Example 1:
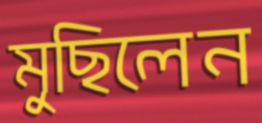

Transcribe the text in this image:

মুছিলেন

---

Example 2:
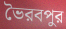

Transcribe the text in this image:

ভৈরবপুর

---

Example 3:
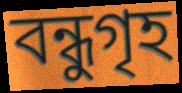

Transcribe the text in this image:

বন্ধুগৃহ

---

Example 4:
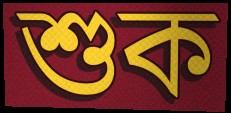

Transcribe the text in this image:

শুক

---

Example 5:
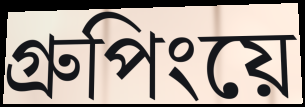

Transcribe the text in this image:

গ্রুপিংয়ে